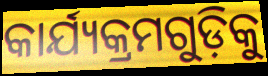
କାର୍ଯ୍ୟକ୍ରମଗୁଡ଼ିକୁ